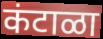
कंटाळा